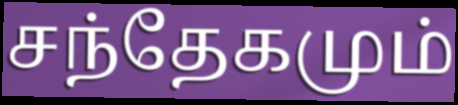
சந்தேகமும்